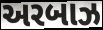
અરબાઝ